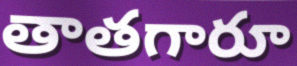
తాతగారూ